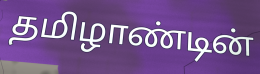
தமிழாண்டின்